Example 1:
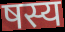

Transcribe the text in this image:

षस्य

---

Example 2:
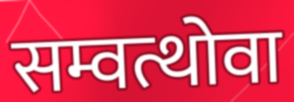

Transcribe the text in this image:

सम्वत्थोवा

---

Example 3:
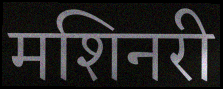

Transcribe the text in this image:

मशिनरी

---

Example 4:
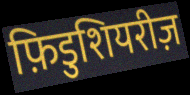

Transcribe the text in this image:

फ़िडुशियरीज़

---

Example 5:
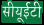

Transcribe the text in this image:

सीयूईटी